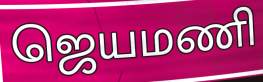
ஜெயமணி